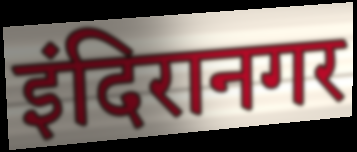
इंदिरानगर